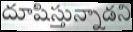
దూషిస్తున్నాడని